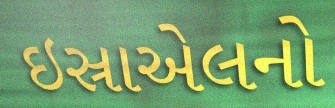
ઇસ્રાએલનો